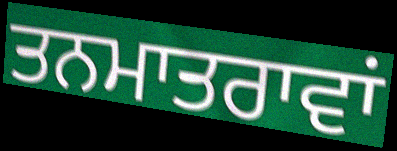
ਤਨਮਾਤਰਾਵਾਂ